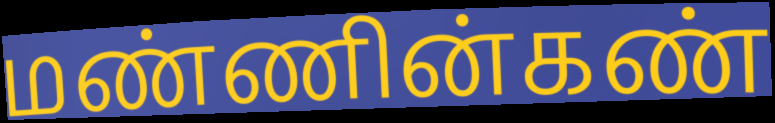
மண்ணின்கண்